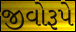
જીવોરૂપે